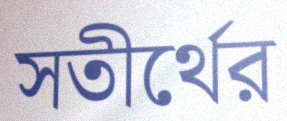
সতীর্থের